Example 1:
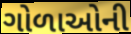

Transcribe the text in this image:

ગોળાઓની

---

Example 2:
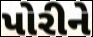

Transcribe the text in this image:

પોરીને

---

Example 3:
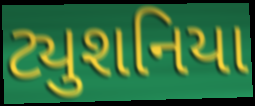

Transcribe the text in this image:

ટ્યુશનિયા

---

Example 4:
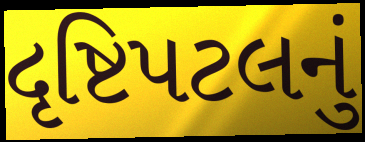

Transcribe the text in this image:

દૃષ્ટિપટલનું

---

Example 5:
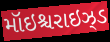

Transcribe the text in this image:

મૉઇશ્ચરાઇઝ્ડ